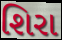
શિરા